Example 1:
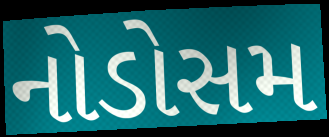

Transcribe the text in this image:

નોડોસમ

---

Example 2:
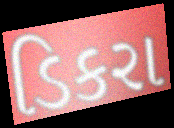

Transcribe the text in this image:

ડિકરા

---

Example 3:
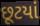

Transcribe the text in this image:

છૂટયાં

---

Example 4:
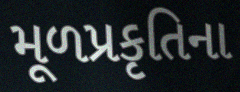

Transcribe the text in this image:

મૂળપ્રકૃતિના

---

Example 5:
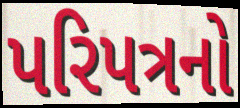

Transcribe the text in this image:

પરિપત્રનો